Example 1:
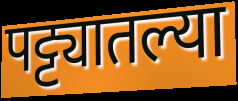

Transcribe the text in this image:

पट्ट्यातल्या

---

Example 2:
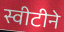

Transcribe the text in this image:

स्वीटीने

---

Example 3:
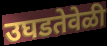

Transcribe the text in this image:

उघडतेवेळी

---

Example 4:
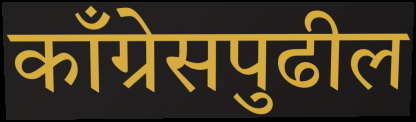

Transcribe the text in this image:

काँग्रेसपुढील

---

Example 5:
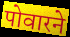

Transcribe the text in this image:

पोवारने